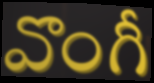
వొంగీ